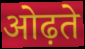
ओढ़ते